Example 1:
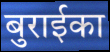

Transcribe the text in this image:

बुराईका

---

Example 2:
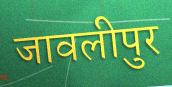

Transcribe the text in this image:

जावलीपुर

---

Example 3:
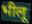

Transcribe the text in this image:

भीलू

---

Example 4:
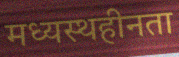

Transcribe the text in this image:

मध्यस्थहीनता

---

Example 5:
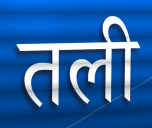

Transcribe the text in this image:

तली